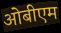
ओबीएम